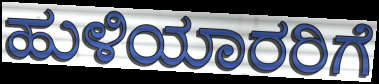
ಹುಳಿಯಾರರಿಗೆ